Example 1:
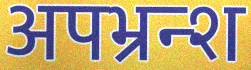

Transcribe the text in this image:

अपभ्रन्श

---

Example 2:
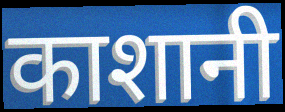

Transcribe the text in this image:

काशानी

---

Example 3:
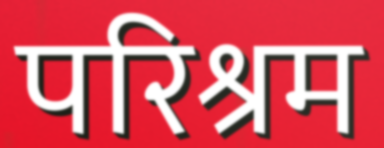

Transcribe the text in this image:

परिश्रम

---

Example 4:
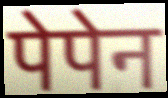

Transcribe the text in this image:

पेपेन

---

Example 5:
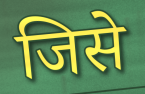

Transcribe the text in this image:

जिसे